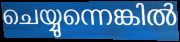
ചെയ്യുന്നെങ്കിൽ